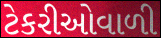
ટેકરીઓવાળી